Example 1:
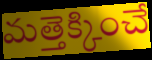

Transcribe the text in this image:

మత్తెక్కించే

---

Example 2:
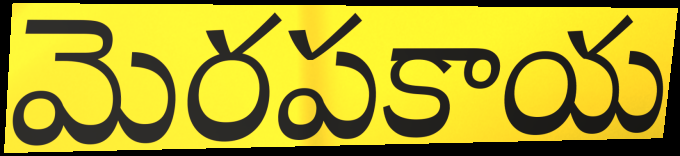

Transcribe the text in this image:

మెరపకాయ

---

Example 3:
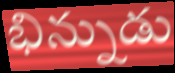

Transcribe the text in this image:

భిన్నుడు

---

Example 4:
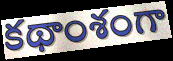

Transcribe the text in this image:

కథాంశంగా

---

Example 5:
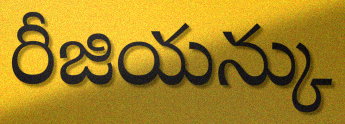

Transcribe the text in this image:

రీజియన్కు